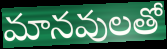
మానవులతో